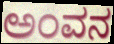
ಅಂವನ